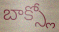
బాక్స్లో